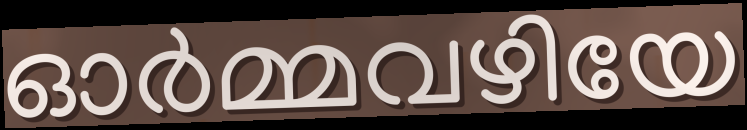
ഓർമ്മവഴിയേ